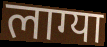
लाग्या